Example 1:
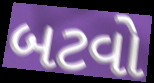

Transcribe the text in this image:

બટવો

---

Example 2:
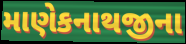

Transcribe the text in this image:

માણેકનાથજીના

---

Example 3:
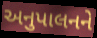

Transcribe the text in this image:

અનુપાલનને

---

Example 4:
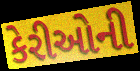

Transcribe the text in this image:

કેરીઓની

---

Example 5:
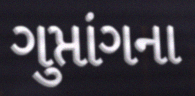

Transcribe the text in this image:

ગુપ્તાંગના